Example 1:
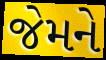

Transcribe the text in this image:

જેમને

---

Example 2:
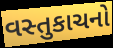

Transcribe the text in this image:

વસ્તુકાચનો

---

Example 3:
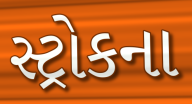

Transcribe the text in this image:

સ્ટ્રોકના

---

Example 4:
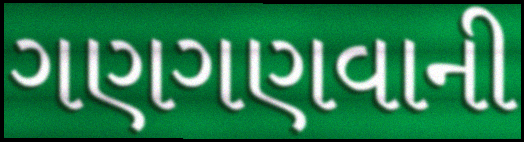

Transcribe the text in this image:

ગણગણવાની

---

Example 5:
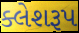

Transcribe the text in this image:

ક્લેશરૂપ